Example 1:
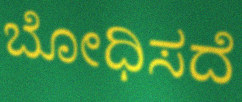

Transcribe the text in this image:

ಬೋಧಿಸದೆ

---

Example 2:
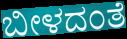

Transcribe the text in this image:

ಬೀಳದಂತೆ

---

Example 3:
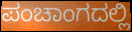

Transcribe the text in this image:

ಪಂಚಾಂಗದಲ್ಲಿ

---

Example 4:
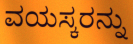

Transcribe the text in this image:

ವಯಸ್ಕರನ್ನು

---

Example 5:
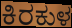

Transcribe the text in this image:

ಕಿರಕುಳ